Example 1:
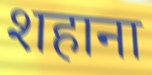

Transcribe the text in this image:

शहाना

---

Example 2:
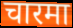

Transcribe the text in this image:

चारमा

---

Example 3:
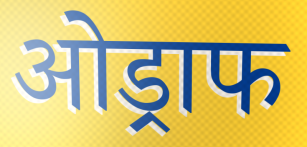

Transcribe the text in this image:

ओड्राफ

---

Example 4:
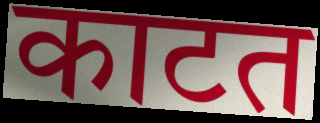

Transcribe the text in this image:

काटत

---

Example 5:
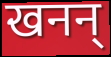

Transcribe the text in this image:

खनन्